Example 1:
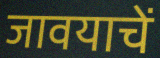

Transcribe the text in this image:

जावयाचें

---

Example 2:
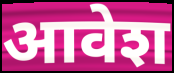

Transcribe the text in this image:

आवेश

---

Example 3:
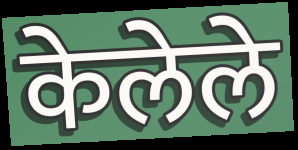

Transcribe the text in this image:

केलेले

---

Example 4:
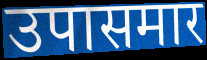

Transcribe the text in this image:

उपासमार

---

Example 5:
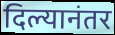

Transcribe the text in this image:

दिल्यानंतर